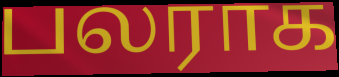
பலராக